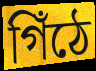
গিঁঠে